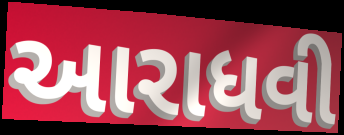
આરાધવી